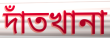
দাঁতখানা